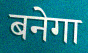
बनेगा